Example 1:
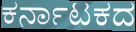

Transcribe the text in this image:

ಕರ್ನಾಟಕದ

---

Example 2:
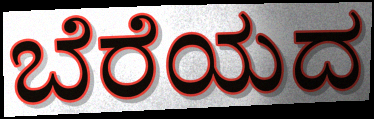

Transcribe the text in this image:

ಬೆರೆಯದ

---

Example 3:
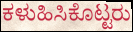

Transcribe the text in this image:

ಕಳುಹಿಸಿಕೊಟ್ಟರು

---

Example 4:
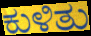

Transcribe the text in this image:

ಕುಳಿತು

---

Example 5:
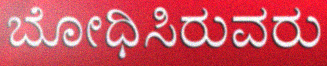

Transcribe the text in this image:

ಬೋಧಿಸಿರುವರು